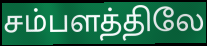
சம்பளத்திலே